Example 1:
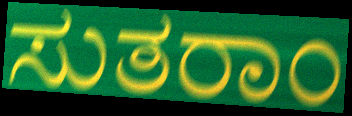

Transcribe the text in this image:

ಸುತರಾಂ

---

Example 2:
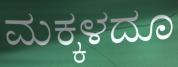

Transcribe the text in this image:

ಮಕ್ಕಳದೂ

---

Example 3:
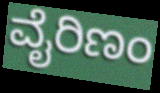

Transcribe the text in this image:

ವೈರಿಣಂ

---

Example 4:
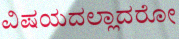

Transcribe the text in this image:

ವಿಷಯದಲ್ಲಾದರೋ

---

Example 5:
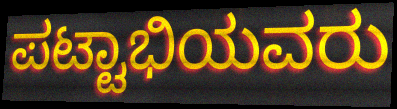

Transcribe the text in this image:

ಪಟ್ಟಾಭಿಯವರು